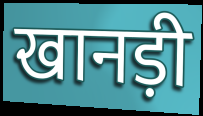
खानड़ी